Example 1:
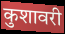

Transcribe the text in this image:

कुशावरी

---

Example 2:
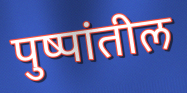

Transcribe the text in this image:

पुष्पांतील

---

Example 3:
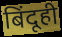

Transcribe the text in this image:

बिंदूही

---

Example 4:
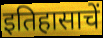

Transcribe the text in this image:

इतिहासाचें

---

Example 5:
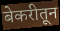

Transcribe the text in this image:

बेकरीतून